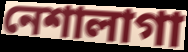
নেশালাগা